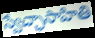
స్వేచ్ఛాసాహితి